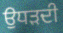
ਉਧੜਦੀ